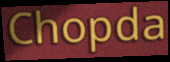
Chopda